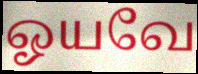
ஓயவே